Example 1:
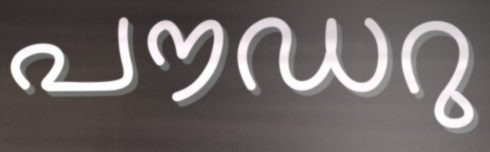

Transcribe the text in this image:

പൗഡറു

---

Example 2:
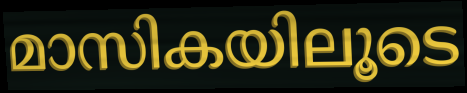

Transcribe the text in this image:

മാസികയിലൂടെ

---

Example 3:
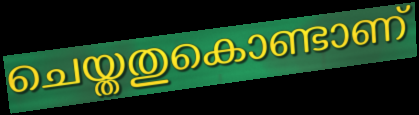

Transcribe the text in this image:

ചെയ്തതുകൊണ്ടാണ്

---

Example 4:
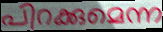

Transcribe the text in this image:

പിറക്കുമെന്ന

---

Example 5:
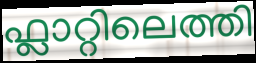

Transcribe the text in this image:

ഫ്ലാറ്റിലെത്തി